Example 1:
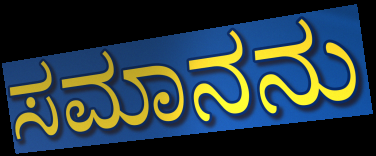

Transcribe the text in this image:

ಸಮಾನನು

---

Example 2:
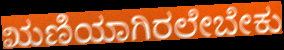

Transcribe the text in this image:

ಋಣಿಯಾಗಿರಲೇಬೇಕು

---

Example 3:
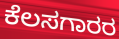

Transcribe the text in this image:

ಕೆಲಸಗಾರರ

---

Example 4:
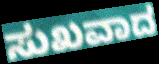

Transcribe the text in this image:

ಸುಖವಾದ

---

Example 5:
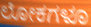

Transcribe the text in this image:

ಲೋಕಗಳೂ